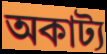
অকাট্য